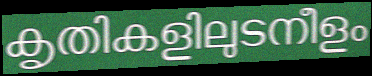
കൃതികളിലുടനീളം